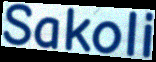
Sakoli